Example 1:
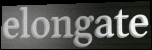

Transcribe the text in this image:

elongate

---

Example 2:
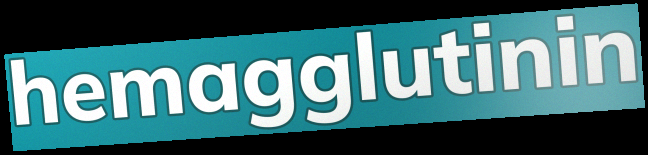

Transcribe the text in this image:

hemagglutinin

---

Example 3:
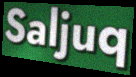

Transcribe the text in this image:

Saljuq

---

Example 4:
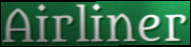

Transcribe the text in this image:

Airliner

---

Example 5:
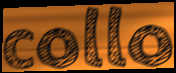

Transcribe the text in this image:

collo